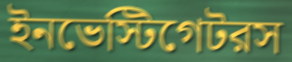
ইনভেস্টিগেটরস